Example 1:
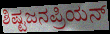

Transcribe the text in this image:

ಶಿಷ್ಟಜನಪ್ರಿಯನ್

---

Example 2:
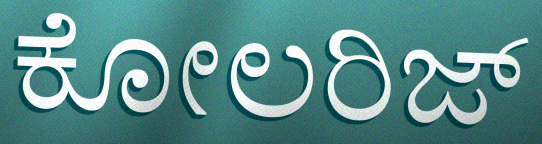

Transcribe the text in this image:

ಕೋಲರಿಜ್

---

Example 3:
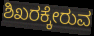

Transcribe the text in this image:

ಶಿಖರಕ್ಕೇರುವ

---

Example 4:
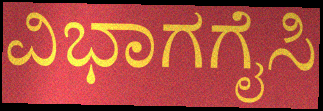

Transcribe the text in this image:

ವಿಭಾಗಗೈಸಿ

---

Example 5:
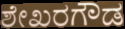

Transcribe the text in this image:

ಶೇಖರಗೌಡ